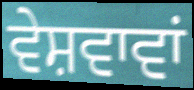
ਵੇਸ਼ਵਾਵਾਂ